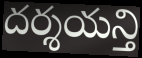
దర్శయన్తి